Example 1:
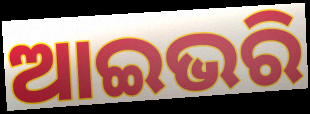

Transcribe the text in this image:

ଆଇଭରି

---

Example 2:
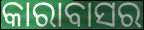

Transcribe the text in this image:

କାରାବାସର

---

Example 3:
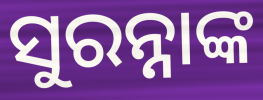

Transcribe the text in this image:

ସୁରନ୍ନାଙ୍କ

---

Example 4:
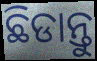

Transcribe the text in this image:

ଛିଡାନ୍ତୁ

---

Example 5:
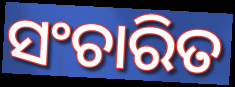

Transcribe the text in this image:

ସଂଚାରିତ